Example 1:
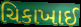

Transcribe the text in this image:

ચિકાખાઈ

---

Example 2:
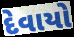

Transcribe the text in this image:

દેવાયો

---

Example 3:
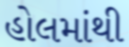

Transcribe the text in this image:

હોલમાંથી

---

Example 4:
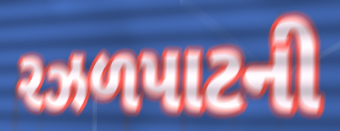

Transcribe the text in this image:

રઝળપાટની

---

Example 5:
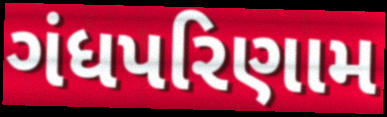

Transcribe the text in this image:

ગંધપરિણામ